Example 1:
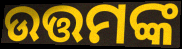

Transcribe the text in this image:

ଉତ୍ତମଙ୍କ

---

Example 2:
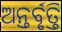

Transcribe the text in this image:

ଅନ୍ତର୍ବୃତ୍ତି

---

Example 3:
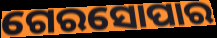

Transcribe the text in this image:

ଗେରସୋପାର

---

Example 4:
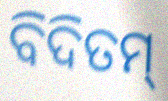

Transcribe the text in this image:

ବିଦିତମ୍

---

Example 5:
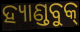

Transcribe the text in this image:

ହ୍ୟାଣ୍ଡବୁକ୍